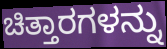
ಚಿತ್ತಾರಗಳನ್ನು